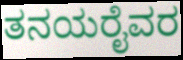
ತನಯರೈವರ